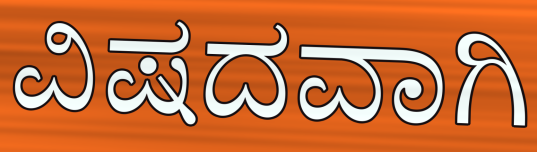
ವಿಷದವಾಗಿ